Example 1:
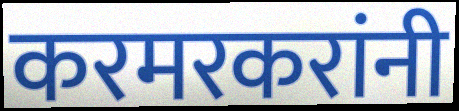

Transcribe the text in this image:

करमरकरांनी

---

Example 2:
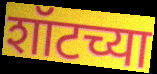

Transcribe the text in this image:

शॉटच्या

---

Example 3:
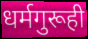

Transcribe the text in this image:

धर्मगुरूही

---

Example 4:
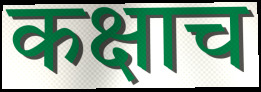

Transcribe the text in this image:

कक्षाच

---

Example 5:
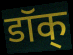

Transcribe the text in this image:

डॉक्